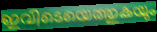
ഇവിടെയെത്തുകയും